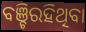
ବଞ୍ଚିରହିଥିବା